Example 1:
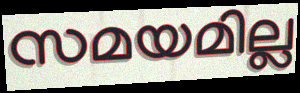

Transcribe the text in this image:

സമയമില്ല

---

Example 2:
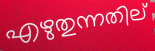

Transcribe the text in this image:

എഴുതുന്നതില്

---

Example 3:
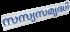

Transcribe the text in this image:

സസ്യസമൃദ്ധി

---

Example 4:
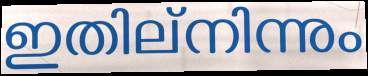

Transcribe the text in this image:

ഇതില്നിന്നും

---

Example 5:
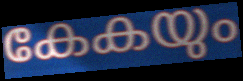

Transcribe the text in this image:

കേകയും